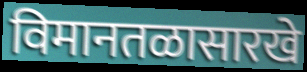
विमानतळासारखे